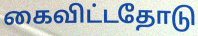
கைவிட்டதோடு